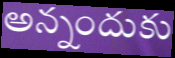
అన్నందుకు